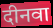
दीनवा